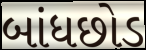
બાંધછોડ